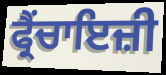
ਫ੍ਰੈਂਚਾਇਜ਼ੀ